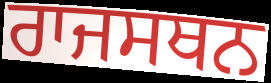
ਰਾਜਸਥਨ